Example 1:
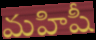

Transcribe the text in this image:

మహిషీ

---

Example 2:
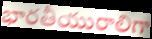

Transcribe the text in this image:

భారతీయురాలిగా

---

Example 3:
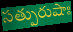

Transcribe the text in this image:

సత్పురుషాః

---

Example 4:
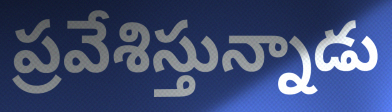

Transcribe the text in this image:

ప్రవేశిస్తున్నాడు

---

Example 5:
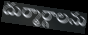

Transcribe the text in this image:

దుర్మార్గాలను